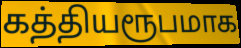
கத்தியரூபமாக